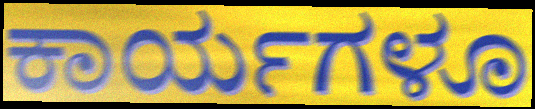
ಕಾರ್ಯಗಳೂ